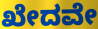
ಖೇದವೇ